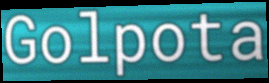
Golpota